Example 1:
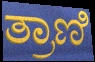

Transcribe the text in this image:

ತ್ರಾಣಿ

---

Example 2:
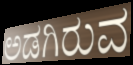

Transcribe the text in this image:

ಅಡಗಿರುವ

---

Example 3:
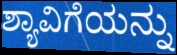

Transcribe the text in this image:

ಶ್ಯಾವಿಗೆಯನ್ನು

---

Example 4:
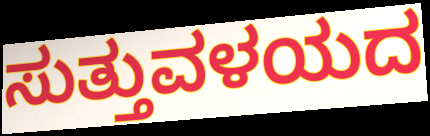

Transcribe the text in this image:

ಸುತ್ತುವಳಯದ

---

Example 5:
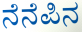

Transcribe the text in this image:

ನೆನೆಪಿನ